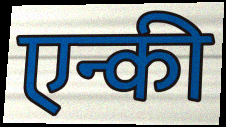
एन्की